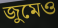
জুমেও